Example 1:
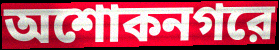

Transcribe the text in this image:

অশোকনগরে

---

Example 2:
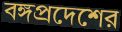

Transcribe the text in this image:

বঙ্গপ্রদেশের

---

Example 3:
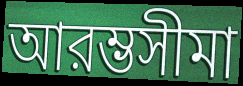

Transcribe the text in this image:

আরম্ভসীমা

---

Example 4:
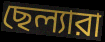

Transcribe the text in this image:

ছেল্যারা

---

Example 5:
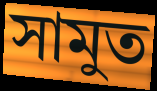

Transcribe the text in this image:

সামুত